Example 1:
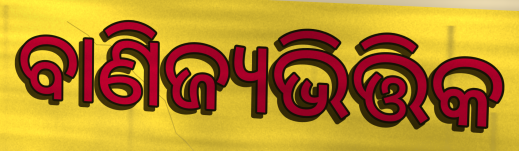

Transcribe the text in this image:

ବାଣିଜ୍ୟଭିତ୍ତିକ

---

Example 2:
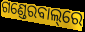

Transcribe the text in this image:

ଗଣ୍ଡେରବାଲ୍‌ରେ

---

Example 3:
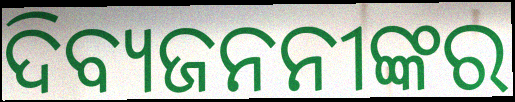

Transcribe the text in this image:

ଦିବ୍ୟଜନନୀଙ୍କର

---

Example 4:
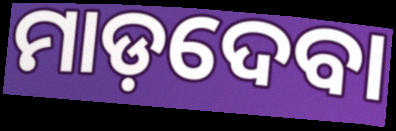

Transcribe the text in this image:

ମାଡ଼ଦେବା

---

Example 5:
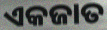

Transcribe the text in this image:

ଏକଜାତ